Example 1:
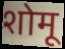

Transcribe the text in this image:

शोमू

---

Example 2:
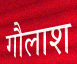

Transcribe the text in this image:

गौलाश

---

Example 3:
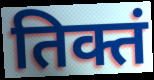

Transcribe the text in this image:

तिक्तं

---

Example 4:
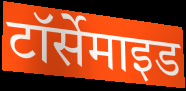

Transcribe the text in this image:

टॉर्सेमाइड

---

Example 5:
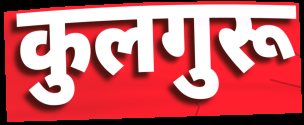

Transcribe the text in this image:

कुलगुरू